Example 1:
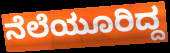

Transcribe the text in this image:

ನೆಲೆಯೂರಿದ್ದ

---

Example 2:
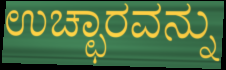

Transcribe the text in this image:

ಉಚ್ಛಾರವನ್ನು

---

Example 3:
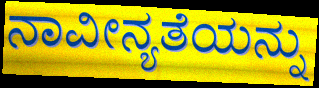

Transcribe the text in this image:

ನಾವೀನ್ಯತೆಯನ್ನು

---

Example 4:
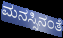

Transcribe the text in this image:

ಮನಸ್ಸಿನಂತೆ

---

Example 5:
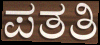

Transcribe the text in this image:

ಪತತಿ